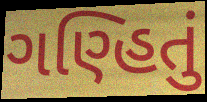
ગણ્હિતું